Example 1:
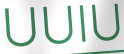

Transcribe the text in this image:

UUIU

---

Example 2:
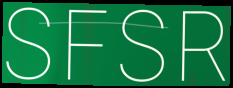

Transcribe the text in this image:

SFSR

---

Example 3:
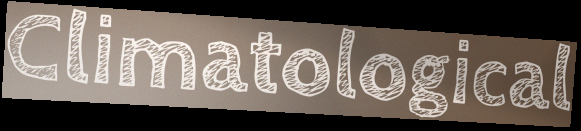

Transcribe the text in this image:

Climatological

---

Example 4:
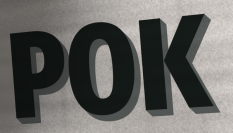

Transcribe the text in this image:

POK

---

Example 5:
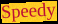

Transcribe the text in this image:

Speedy